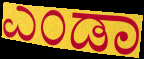
ಎಂಡಾ